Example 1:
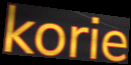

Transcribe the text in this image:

korie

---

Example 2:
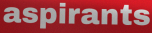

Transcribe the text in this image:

aspirants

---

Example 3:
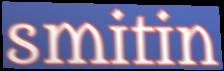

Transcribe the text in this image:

smitin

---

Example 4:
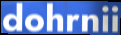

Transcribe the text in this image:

dohrnii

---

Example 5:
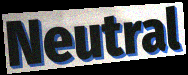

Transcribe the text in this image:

Neutral